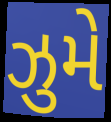
ઝુમે